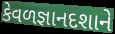
કેવળજ્ઞાનદશાને